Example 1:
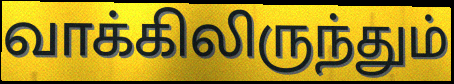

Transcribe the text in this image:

வாக்கிலிருந்தும்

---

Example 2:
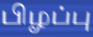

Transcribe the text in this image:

பிழப்பு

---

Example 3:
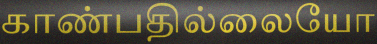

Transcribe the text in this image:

காண்பதில்லையோ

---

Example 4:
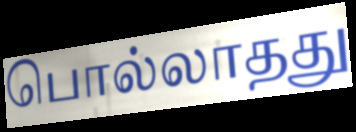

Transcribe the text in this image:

பொல்லாதது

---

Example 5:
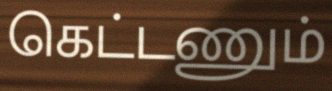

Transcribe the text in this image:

கெட்டணும்